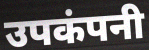
उपकंपनी